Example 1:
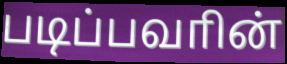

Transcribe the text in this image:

படிப்பவரின்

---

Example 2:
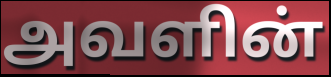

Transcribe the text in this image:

அவளின்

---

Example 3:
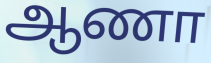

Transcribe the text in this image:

ஆணா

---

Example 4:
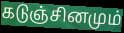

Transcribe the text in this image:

கடுஞ்சினமும்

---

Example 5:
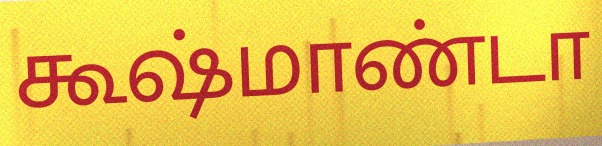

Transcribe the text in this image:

கூஷ்மாண்டா